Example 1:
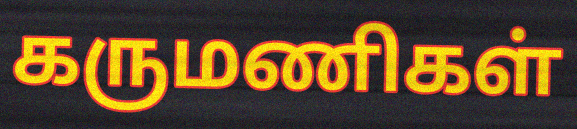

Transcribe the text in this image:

கருமணிகள்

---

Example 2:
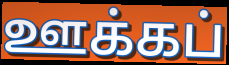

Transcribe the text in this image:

ஊக்கப்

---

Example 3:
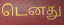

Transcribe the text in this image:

டெனது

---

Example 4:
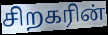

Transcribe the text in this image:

சிறகரின்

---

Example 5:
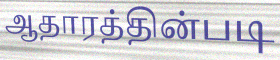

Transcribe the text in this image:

ஆதாரத்தின்படி